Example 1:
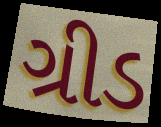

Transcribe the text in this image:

ગ્રીડ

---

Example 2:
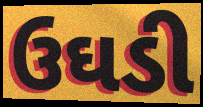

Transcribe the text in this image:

ઉઘડી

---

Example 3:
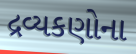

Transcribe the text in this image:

દ્રવ્યકણોના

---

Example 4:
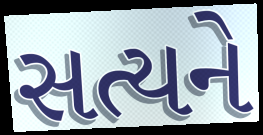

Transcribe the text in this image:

સત્યને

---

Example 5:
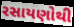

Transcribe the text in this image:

રસાયણોથી